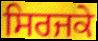
ਸਿਰਜਕੇ